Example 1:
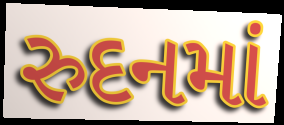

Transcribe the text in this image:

રુદનમાં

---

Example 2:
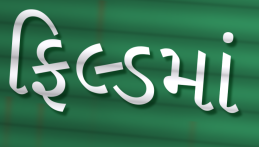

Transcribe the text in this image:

ફિલ્ડમાં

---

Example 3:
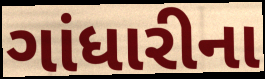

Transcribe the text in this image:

ગાંધારીના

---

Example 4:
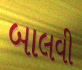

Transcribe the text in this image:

બાલવી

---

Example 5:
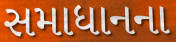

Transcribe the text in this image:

સમાધાનના